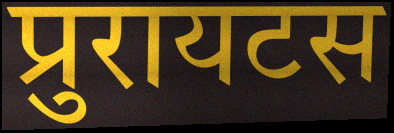
प्रुरायटस